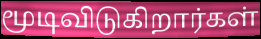
மூடிவிடுகிறார்கள்